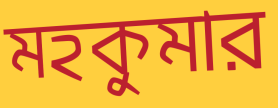
মহকুমার